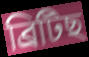
ব্ৰিটিছ